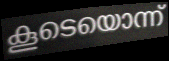
കൂടെയൊന്ന്